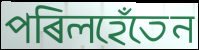
পৰিলহেঁতেন